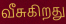
வீசுகிறது